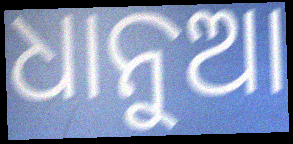
ଧାନୁଆ